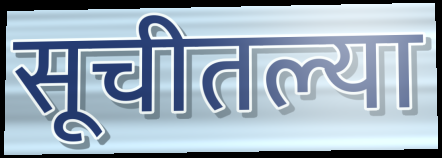
सूचीतल्या